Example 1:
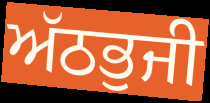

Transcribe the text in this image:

ਅੱਠਭੁਜੀ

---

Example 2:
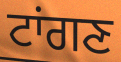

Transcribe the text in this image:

ਟਾਂਗਣ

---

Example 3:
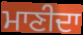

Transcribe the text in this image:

ਮਾਣੀਦਾ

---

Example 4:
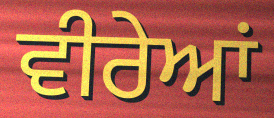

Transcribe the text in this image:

ਵੀਰੇਆਂ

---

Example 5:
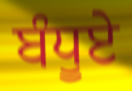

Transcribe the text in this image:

ਬੰਧੂਏ